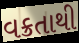
વક્રતાથી